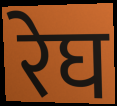
रेघ